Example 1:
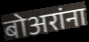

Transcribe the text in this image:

बोअरांना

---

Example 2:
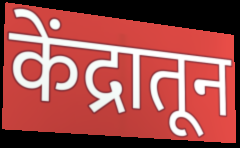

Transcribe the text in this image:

केंद्रातून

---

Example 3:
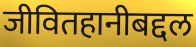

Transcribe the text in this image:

जीवितहानीबद्दल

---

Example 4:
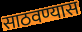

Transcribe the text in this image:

साठवण्यास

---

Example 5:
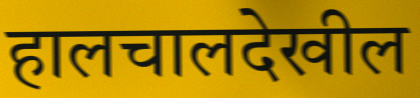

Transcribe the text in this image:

हालचालदेखील